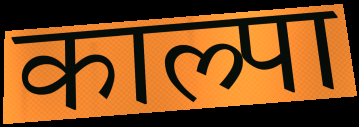
काल्पा